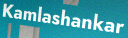
Kamlashankar